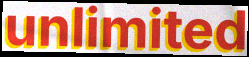
unlimited